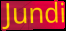
Jundi